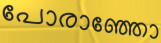
പോരാഞ്ഞോ